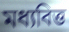
মধ্যবিত্ত